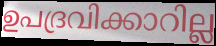
ഉപദ്രവിക്കാറില്ല